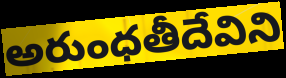
అరుంధతీదేవిని